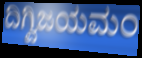
ದಿಗ್ವಿಜಯಮಂ